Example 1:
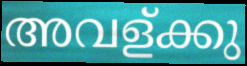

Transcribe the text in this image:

അവള്ക്കു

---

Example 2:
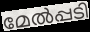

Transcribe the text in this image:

മേൽപ്പടി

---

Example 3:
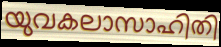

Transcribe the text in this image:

യുവകലാസാഹിതി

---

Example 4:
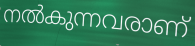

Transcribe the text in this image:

നൽകുന്നവരാണ്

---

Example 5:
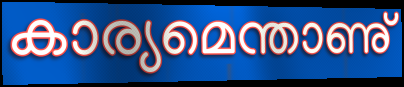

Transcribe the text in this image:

കാര്യമെന്താണു്